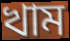
খাম